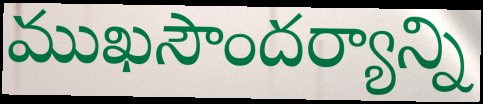
ముఖసౌందర్యాన్ని